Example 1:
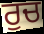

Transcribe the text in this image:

ਰੁਚ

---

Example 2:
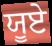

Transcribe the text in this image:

ਯੂਏ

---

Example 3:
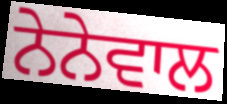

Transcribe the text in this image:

ਨੇਨੇਵਾਲ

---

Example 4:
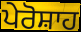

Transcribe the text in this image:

ਪੇਰੋਸ਼ਾਹ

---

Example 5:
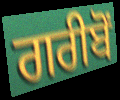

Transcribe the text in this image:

ਗਰੀਬੋਂ